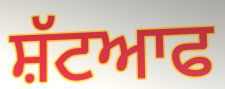
ਸ਼ੱਟਆਫ